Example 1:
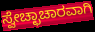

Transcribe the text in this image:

ಸ್ವೇಚ್ಛಾಚಾರವಾಗಿ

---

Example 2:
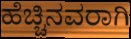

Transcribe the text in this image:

ಹೆಚ್ಚಿನವರಾಗಿ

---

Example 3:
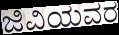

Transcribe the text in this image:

ಜಿವಿಯವರ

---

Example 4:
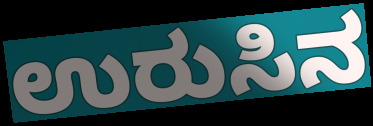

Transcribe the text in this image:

ಉರುಸಿನ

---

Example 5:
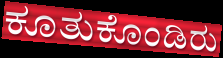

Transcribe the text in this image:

ಕೂತುಕೊಂಡಿರು